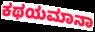
ಕಥಯಮಾನಾ